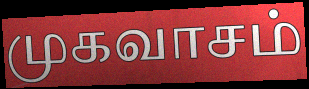
முகவாசம்